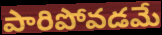
పారిపోవడమే